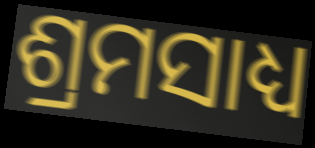
ଶ୍ରମସାଧ୍ୟ